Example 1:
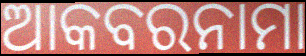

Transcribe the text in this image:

ଆକବରନାମା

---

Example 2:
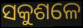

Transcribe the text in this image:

ସକୁଶଳେ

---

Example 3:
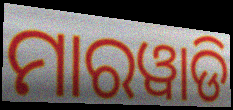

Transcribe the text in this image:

ମାରୱାଡି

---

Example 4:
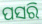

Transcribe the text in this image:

ପସରି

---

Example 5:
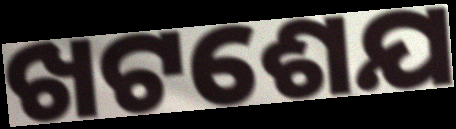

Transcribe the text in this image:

ଖଟଶେଯ